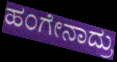
ಹಂಗೇನಾದ್ರು